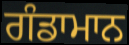
ਗੰਡਾਮਾਨ